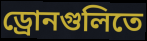
ড্রোনগুলিতে